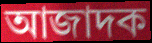
আজাদক